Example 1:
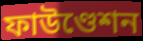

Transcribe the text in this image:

ফাউণ্ডেশন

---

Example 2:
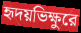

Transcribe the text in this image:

হৃদয়ভিক্ষুরে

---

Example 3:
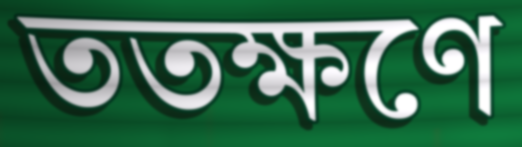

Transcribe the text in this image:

ততক্ষণে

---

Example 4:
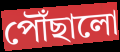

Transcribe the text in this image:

পৌঁছালো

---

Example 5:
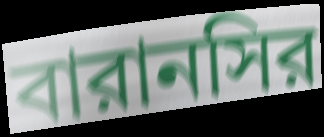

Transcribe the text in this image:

বারানসির